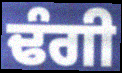
ਢੰਗੀ